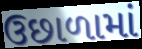
ઉછાળામાં